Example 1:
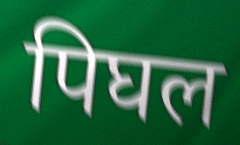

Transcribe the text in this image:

पिघल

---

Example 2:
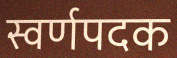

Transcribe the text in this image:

स्वर्णपदक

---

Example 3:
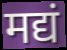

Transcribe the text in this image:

मद्यं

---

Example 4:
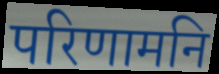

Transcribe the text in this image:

परिणामनि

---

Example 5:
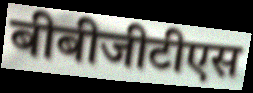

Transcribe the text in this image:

बीबीजीटीएस